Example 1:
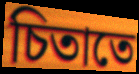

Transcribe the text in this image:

চিতাতে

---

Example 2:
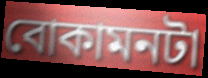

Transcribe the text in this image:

বোকামনটা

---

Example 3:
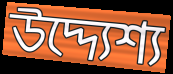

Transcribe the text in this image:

উদ্দ্যেশ্য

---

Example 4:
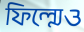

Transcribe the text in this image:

ফিল্মেও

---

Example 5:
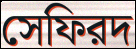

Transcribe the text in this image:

সেফিরদ